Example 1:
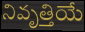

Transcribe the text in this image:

నివృత్తియే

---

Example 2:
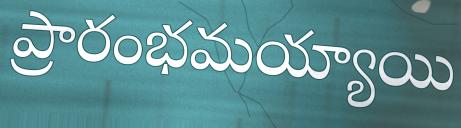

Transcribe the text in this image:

ప్రారంభమయ్యాయి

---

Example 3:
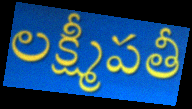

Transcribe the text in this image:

లక్ష్మీపతీ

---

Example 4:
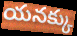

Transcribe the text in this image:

యనక్కు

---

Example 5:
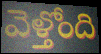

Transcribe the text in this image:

వెళ్తోంది